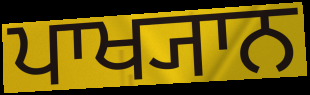
ਪਾਖ੍ਯਾਨ